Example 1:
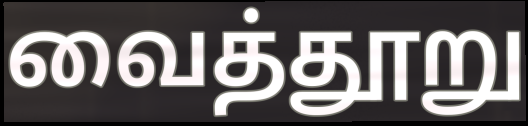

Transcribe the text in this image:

வைத்தூறு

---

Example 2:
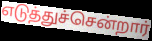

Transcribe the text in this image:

எடுத்துச்சென்றார்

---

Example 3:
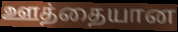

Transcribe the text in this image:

ஊத்தையான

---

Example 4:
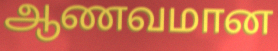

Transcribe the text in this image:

ஆணவமான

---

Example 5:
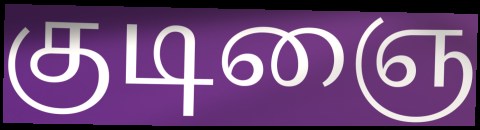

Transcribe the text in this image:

குடிஞை